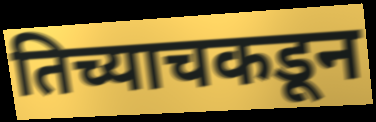
तिच्याचकडून